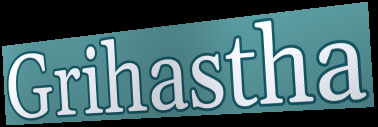
Grihastha